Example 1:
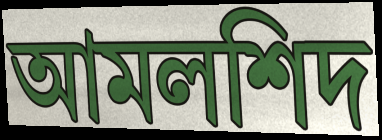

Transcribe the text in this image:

আমলশিদ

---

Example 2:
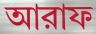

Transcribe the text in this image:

আরাফ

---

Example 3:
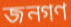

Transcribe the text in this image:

জনগণ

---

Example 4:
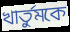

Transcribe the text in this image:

খার্তুমকে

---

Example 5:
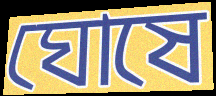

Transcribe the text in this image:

ঘোষে